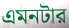
এমনটার